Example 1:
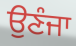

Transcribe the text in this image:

ਉਣੰਜਾ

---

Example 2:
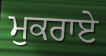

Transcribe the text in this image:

ਮੁਕਰਾਏ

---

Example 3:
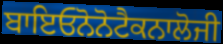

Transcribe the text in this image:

ਬਾਇਓਨੋਨੋਟੈਕਨਾਲੋਜੀ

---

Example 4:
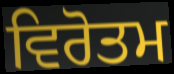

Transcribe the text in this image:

ਵਿਰੋਤਮ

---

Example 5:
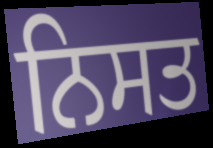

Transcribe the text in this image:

ਨਿਸਤ